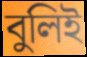
বুলিই